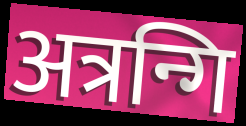
अत्रन्गि